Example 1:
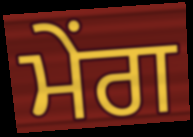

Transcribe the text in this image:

ਮੇਂਗ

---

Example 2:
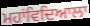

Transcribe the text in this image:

ਮਹਾਂਵਿਦਿਆਲਾ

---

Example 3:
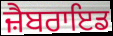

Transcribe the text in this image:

ਜ਼ੈਬਰਾਇਡ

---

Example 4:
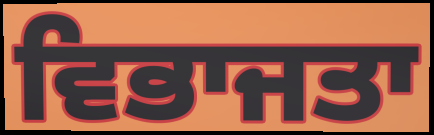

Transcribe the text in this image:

ਵਿਭਾਜਤਾ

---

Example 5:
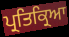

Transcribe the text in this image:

ਪ੍ਰਤਿਕ੍ਰਿਆ